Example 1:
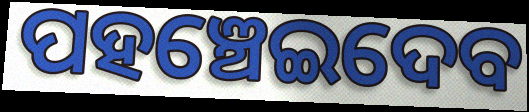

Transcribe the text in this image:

ପହଞ୍ଚେଇଦେବ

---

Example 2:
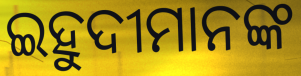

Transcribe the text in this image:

ଇହୁଦୀମାନଙ୍କ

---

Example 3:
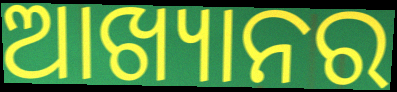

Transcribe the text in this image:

ଆଖ୍ୟାନର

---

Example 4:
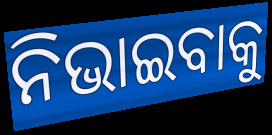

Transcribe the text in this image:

ନିଭାଇବାକୁ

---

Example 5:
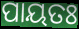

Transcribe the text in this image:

ପାୟତଃ